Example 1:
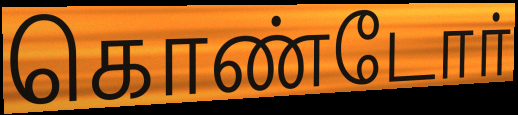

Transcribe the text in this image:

கொண்டோர்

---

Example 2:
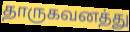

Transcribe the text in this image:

தாருகவனத்து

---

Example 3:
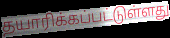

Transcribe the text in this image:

தயாரிக்கப்பட்டுள்ளது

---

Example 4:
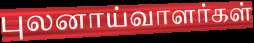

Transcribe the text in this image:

புலனாய்வாளர்கள்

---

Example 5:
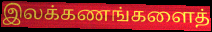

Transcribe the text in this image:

இலக்கணங்களைத்